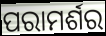
ପରାମର୍ଶର